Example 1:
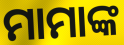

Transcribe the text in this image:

ମାମାଙ୍କ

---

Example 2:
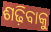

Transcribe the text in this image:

ଶଢ଼ିବାକୁ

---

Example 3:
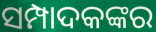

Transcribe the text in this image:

ସମ୍ପାଦକଙ୍କର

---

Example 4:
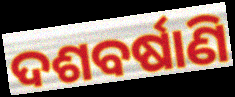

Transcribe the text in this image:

ଦଶବର୍ଷାଣି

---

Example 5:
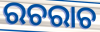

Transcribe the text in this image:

ରଚରାଚ